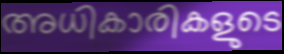
അധികാരികളുടെ